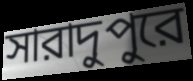
সারাদুপুরে